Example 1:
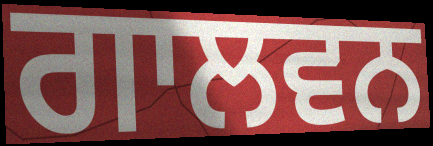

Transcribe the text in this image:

ਗਾਲਵਨ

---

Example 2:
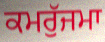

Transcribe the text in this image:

ਕਮਰੁੱਜਮਾ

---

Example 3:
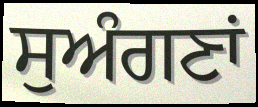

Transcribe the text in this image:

ਸੁਅੰਗਣਾਂ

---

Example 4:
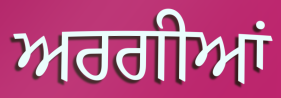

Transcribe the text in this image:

ਅਰਗੀਆਂ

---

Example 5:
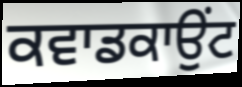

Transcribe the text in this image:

ਕਵਾਡਕਾਉਂਟ